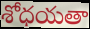
శోధయతా